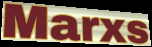
Marxs